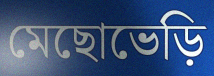
মেছোভেড়ি